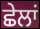
ਛੇਲਾਂ